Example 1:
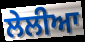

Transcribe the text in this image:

ਲੇਲੀਆ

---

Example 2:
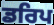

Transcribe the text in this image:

ਡਰਿਪ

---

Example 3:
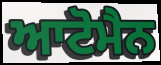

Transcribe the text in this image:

ਆਟੋਮੈਨ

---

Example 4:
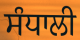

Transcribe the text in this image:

ਸੰਧਾਲੀ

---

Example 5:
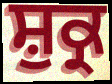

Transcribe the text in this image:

ਸ਼ੁਕ੍ਰ